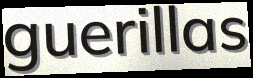
guerillas